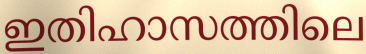
ഇതിഹാസത്തിലെ